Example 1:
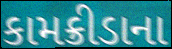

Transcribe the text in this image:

કામક્રીડાના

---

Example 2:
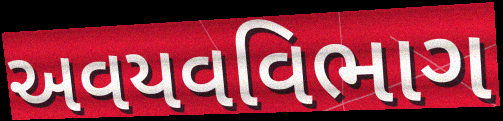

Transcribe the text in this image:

અવયવવિભાગ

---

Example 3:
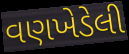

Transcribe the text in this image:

વણખેડેલી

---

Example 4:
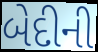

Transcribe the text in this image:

બેદીની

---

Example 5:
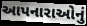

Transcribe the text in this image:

આપનારાઓનું